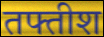
तफ्तीश